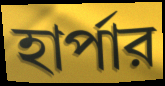
হার্পার